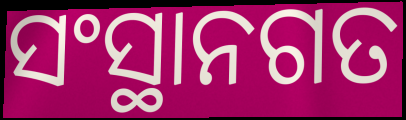
ସଂସ୍ଥାନଗତ